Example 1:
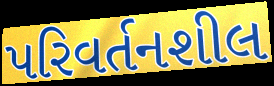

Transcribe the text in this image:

પરિવર્તનશીલ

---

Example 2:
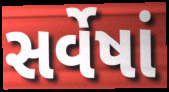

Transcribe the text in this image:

સર્વેષાં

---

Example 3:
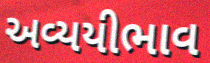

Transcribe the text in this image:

અવ્યયીભાવ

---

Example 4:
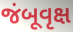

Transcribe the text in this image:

જંબૂવૃક્ષ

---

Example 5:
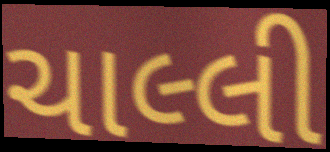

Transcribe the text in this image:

ચાલ્લી